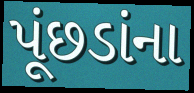
પૂંછડાંના